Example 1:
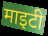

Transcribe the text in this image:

माइटी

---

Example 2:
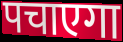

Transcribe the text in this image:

पचाएगा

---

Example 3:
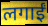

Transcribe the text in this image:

लगाईं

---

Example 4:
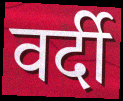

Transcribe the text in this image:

वर्दी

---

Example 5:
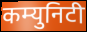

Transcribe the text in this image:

कम्युनिटी